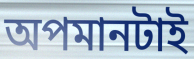
অপমানটাই